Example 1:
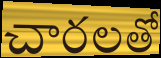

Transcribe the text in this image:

చారలతో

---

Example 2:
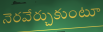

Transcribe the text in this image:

నెరవేర్చుకుంటూ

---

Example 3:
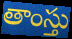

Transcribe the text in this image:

తాంస్తు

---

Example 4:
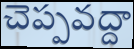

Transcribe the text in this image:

చెప్పవద్దా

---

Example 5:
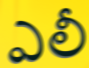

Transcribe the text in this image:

ఎలీ